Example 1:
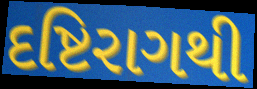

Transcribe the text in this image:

દષ્ટિરાગથી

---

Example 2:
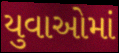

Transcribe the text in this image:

યુવાઓમાં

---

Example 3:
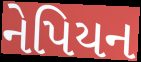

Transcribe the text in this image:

નેપિયન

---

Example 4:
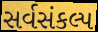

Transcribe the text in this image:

સર્વસંકલ્પ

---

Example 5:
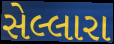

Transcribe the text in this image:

સેલ્લારા